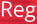
Reg